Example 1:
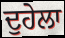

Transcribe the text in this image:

ਦੁਹੇਲਾ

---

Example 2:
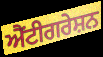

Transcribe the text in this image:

ਐਂਟੀਗਰੇਸ਼ਨ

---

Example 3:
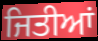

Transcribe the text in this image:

ਜਿਤੀਆਂ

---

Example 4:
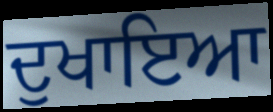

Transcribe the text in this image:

ਦੁਖਾਇਆ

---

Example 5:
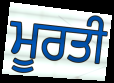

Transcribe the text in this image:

ਮੂਰਤੀ